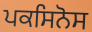
ਪਕਸਿਨੋਸ